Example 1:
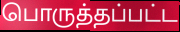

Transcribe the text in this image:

பொருத்தப்பட்ட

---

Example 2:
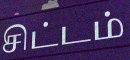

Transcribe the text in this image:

சிட்டம்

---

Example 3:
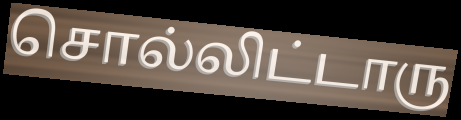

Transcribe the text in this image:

சொல்லிட்டாரு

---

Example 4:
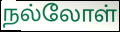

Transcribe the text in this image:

நல்லோள்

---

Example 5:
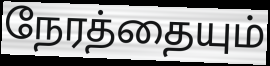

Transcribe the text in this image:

நேரத்தையும்